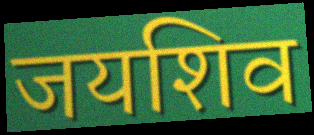
जयशिव